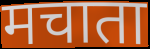
मचाता